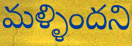
మళ్ళిందని